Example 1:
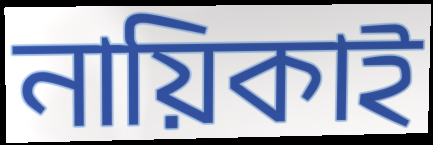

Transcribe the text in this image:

নায়িকাই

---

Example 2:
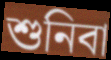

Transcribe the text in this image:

শুনিবা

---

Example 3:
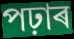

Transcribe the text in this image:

পঢ়াৰ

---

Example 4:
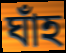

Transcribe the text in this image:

ঘাঁহ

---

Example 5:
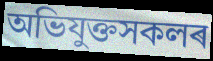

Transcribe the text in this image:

অভিযুক্তসকলৰ